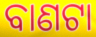
ବାଣଟା